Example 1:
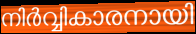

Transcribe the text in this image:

നിർവ്വികാരനായി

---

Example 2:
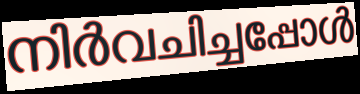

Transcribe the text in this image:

നിർവചിച്ചപ്പോൾ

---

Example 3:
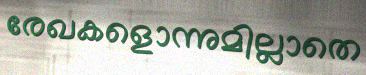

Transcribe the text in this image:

രേഖകളൊന്നുമില്ലാതെ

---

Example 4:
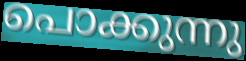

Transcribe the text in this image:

പൊക്കുന്നു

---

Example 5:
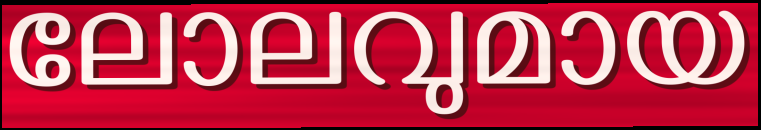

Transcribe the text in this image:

ലോലവുമായ